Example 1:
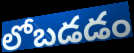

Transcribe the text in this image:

లోబడడం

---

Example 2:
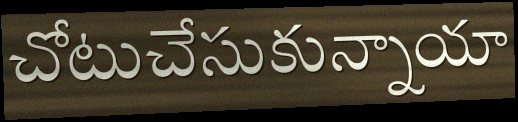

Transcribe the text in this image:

చోటుచేసుకున్నాయా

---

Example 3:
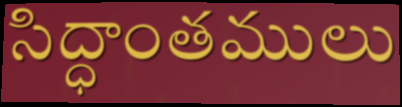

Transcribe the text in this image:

సిద్ధాంతములు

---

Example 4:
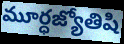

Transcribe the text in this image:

మూర్ధజ్యోతిషి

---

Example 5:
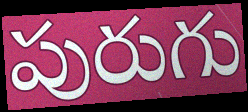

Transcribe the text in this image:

పురుగు